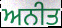
ਅਨੀਤ